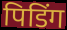
पिडिंग